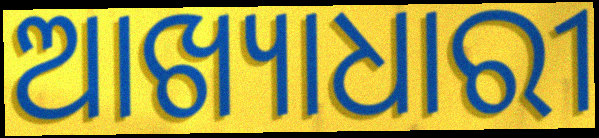
ଆଖ୍ୟାଧାରୀ